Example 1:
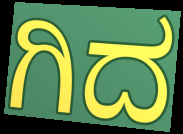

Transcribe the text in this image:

ಗಿದ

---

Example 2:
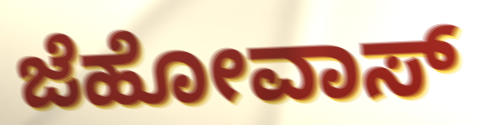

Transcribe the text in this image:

ಜೆಹೋವಾಸ್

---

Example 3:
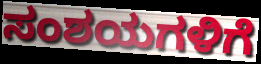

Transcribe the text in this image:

ಸಂಶಯಗಳಿಗೆ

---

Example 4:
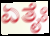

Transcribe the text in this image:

ಏತೈಃ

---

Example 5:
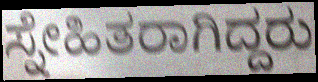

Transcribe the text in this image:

ಸ್ನೇಹಿತರಾಗಿದ್ದರು